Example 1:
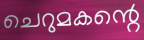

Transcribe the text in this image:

ചെറുമകന്റെ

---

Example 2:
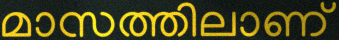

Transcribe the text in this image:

മാസത്തിലാണ്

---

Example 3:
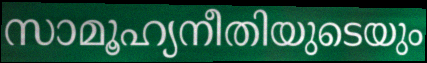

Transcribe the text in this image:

സാമൂഹ്യനീതിയുടെയും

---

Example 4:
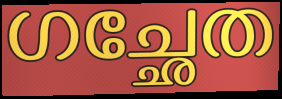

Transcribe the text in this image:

ഗച്ഛേത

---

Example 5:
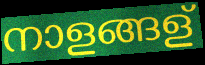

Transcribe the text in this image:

നാളങ്ങള്